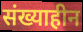
संख्याहीन